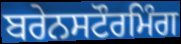
ਬਰੇਨਸਟੌਰਮਿੰਗ